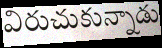
విరుచుకున్నాడు